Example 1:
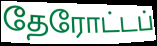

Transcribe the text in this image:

தேரோட்டப்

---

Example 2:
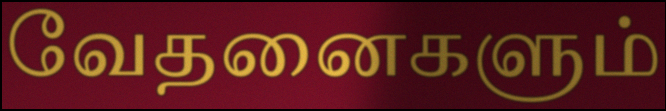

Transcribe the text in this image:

வேதனைகளும்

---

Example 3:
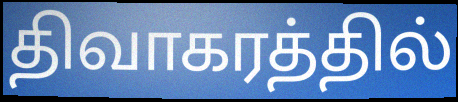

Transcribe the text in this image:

திவாகரத்தில்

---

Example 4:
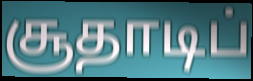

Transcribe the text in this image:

சூதாடிப்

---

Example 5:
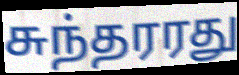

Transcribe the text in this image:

சுந்தரரது